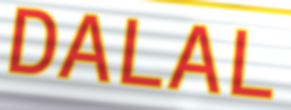
DALAL